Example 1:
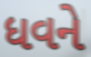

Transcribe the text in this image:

ધવને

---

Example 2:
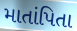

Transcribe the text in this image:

માતાંપિતા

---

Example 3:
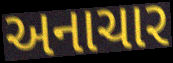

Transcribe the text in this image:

અનાચાર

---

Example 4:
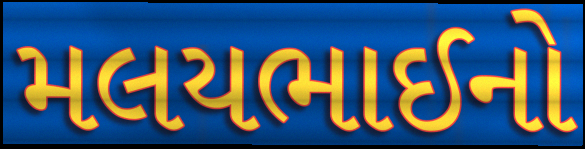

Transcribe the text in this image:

મલયભાઈનો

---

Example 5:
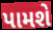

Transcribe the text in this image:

પામશે